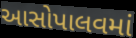
આસોપાલવમાં